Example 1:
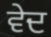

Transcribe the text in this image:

ਵੇਦ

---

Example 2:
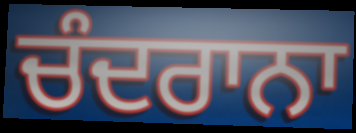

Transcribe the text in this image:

ਚੰਦਰਾਨਾ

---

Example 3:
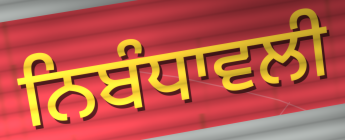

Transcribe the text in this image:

ਨਿਬੰਧਾਵਲੀ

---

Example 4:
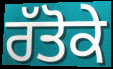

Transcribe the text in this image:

ਰੱਤੋਕੇ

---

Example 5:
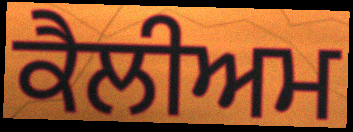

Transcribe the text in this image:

ਕੈਲੀਅਮ